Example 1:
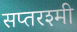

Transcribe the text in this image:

सप्तरश्मी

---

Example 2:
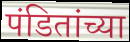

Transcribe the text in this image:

पंडितांच्या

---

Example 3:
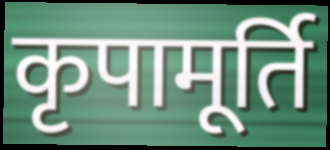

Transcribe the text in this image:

कृपामूर्ति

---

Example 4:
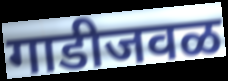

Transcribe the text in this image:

गाडीजवळ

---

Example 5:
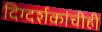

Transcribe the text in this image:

दिग्दर्शकांचीही